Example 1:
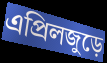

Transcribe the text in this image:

এপ্রিলজুড়ে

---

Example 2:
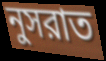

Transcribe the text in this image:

নুসরাত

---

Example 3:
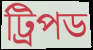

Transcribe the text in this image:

ট্রিপড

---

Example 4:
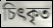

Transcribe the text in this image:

চিৎকৃত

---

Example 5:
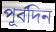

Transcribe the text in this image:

পূর্বদিন